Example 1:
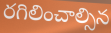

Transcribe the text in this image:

రగిలించాల్సిన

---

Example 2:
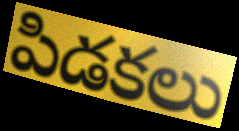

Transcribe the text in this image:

పిడకలు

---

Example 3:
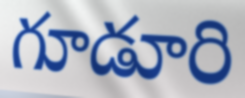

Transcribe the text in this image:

గూడూరి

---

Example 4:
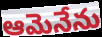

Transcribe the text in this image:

ఆమెనేను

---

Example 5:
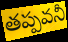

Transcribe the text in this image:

తప్పవనీ